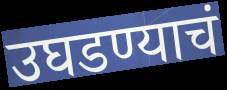
उघडण्याचं